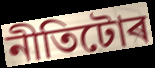
নীতিটোৰ